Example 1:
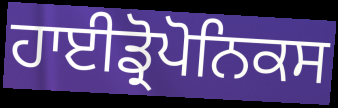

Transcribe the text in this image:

ਹਾਈਡ੍ਰੋਪੋਨਿਕਸ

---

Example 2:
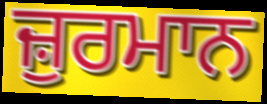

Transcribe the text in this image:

ਜ਼ੁਰਮਾਨ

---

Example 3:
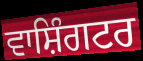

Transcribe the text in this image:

ਵਾਸ਼ਿੰਗਟਰ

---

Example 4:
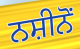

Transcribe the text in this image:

ਨਸ਼ੀਨੋਂ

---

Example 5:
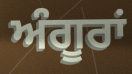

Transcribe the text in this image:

ਅੰਗੂਰਾਂ